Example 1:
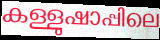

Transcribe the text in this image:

കള്ളുഷാപ്പിലെ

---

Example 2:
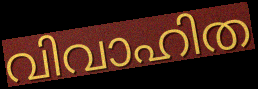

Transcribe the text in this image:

വിവാഹിത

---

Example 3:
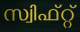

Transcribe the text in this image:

സ്വിഫ്റ്റ്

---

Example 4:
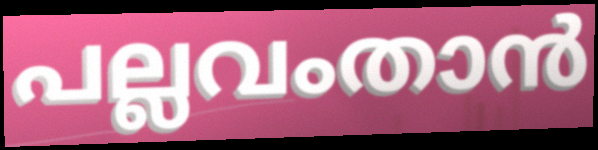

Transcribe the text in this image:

പല്ലവംതാൻ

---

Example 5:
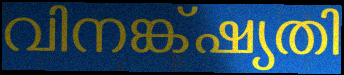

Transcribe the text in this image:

വിനങ്ക്ഷ്യതി